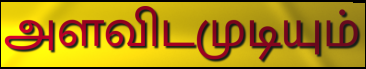
அளவிடமுடியும்